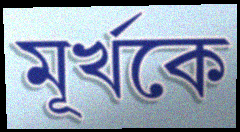
মূর্খকে